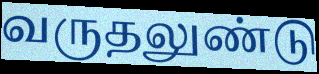
வருதலுண்டு